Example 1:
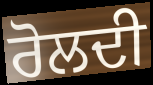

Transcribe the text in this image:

ਰੋਲਦੀ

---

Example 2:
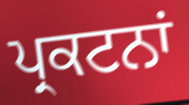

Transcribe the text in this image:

ਪ੍ਰਕਟਨਾਂ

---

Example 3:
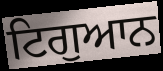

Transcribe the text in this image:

ਟਿਗੁਆਨ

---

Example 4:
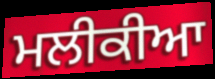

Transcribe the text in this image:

ਮਲੀਕੀਆ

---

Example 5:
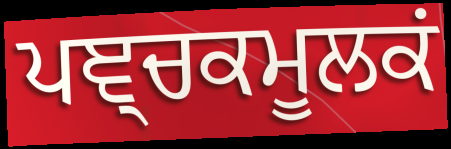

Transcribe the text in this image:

ਪਞ੍ਚਕਮੂਲਕਂ